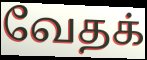
வேதக்